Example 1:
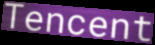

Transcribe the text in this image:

Tencent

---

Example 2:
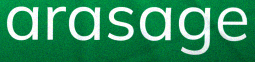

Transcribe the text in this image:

arasage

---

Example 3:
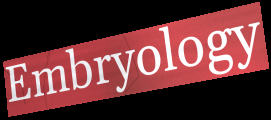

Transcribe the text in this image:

Embryology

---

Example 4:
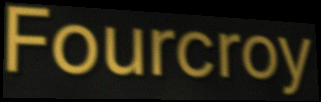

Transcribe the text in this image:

Fourcroy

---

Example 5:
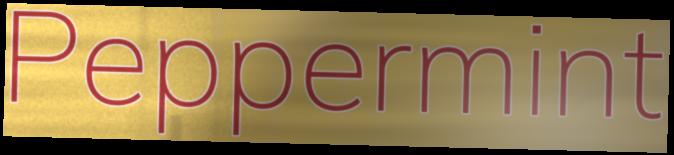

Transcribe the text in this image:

Peppermint